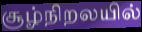
சூழ்நிறலயில்